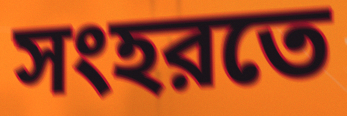
সংহরতে